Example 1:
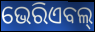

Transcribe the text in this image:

ଭେରିଏବଲ୍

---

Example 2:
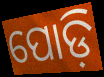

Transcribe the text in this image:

ପୋଡ଼ି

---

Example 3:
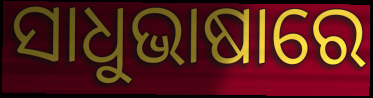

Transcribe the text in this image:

ସାଧୁଭାଷାରେ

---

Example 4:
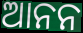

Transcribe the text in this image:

ଆନନ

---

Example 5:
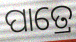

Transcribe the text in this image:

ପାତ୍ରେ